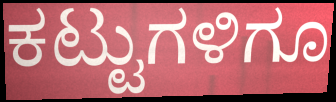
ಕಟ್ಟುಗಳಿಗೂ